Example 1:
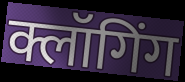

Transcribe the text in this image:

क्लॉगिंग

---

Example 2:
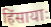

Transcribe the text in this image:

हिंसायाः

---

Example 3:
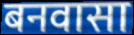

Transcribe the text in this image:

बनवासा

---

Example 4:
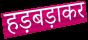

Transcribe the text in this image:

हड़बड़ाकर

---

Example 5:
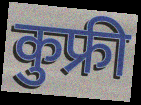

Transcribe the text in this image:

कुफ्री